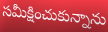
సమీక్షించుకున్నాను